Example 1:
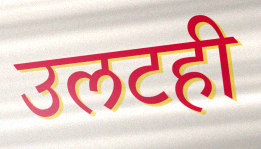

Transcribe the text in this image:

उलटही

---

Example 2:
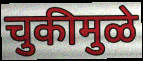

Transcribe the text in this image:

चुकीमुळे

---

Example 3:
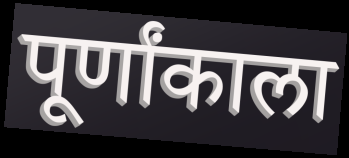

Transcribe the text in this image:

पूर्णांकाला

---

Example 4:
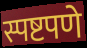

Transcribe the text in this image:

स्पष्टपणे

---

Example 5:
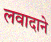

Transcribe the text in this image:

लवादाने